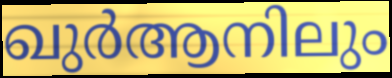
ഖുർആനിലും